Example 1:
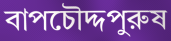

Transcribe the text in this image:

বাপচৌদ্দপুরুষ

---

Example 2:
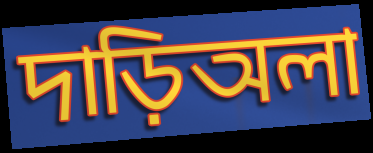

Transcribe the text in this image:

দাড়িঅলা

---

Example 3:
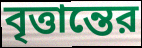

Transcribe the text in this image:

বৃত্তান্তের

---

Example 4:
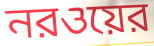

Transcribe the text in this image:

নরওয়ের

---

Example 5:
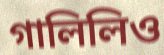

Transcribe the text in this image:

গালিলিও